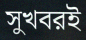
সুখবরই